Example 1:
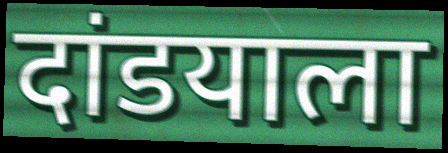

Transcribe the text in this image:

दांडयाला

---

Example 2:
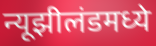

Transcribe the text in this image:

न्यूझीलंडमध्ये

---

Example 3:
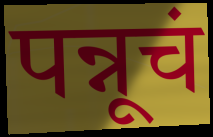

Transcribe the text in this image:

पन्नूचं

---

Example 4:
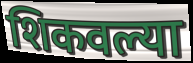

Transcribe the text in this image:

शिकवल्या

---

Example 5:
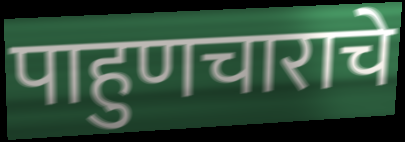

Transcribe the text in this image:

पाहुणचाराचे